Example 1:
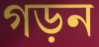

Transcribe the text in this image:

গড়ন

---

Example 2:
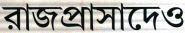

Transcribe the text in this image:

রাজপ্রাসাদেও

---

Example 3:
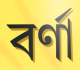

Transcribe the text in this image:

বর্ণা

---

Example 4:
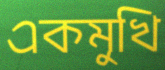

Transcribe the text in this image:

একমুখি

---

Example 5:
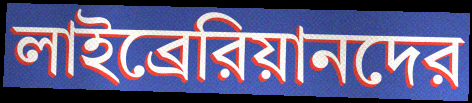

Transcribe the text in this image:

লাইব্রেরিয়ানদের